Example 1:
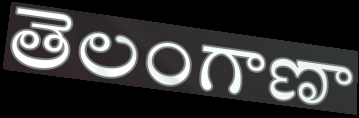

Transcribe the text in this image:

తెలంగాణా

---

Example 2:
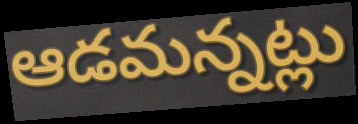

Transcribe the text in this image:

ఆడమన్నట్లు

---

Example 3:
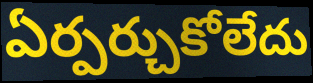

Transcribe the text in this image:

ఏర్పర్చుకోలేదు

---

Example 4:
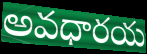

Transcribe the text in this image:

అవధారయ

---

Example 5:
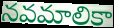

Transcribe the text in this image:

నవమాలికా